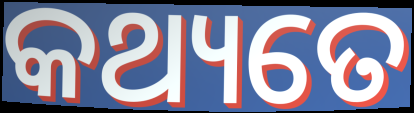
କଥ୍ୟତେ